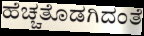
ಹೆಚ್ಚತೊಡಗಿದಂತೆ